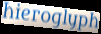
hieroglyph